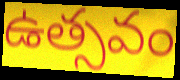
ఉత్సవం